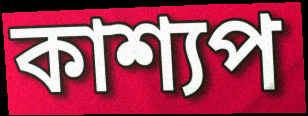
কাশ্যপ